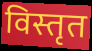
विस्तृत